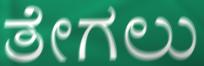
ತೇಗಲು